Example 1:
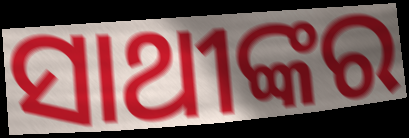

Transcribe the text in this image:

ସାଥୀଙ୍କର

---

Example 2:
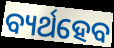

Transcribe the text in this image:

ବ୍ୟର୍ଥହେବ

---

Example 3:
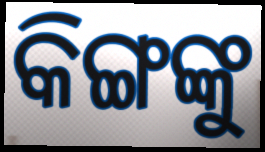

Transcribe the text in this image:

କିଙ୍ଗଙ୍କୁ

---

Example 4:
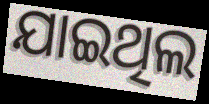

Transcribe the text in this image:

ଯାଇଥିଲ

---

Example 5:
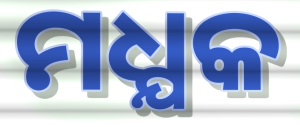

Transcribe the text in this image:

ମଧ୍ଯକ